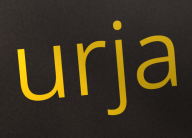
urja